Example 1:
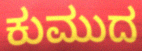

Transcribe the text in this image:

ಕುಮುದ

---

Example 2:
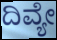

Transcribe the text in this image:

ದಿವ್ಯೇ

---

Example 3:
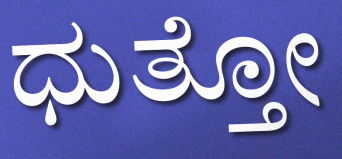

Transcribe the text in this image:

ಧುತ್ತೋ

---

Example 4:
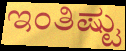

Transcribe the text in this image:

ಇಂತಿಷ್ಟು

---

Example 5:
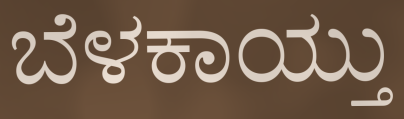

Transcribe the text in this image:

ಬೆಳಕಾಯ್ತು